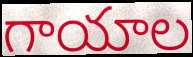
గాయాల